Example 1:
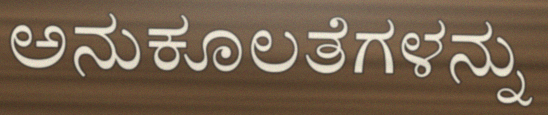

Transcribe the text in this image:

ಅನುಕೂಲತೆಗಳನ್ನು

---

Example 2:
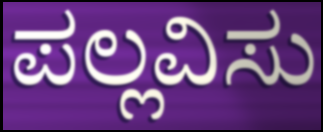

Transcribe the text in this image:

ಪಲ್ಲವಿಸು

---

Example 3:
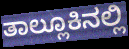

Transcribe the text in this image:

ತಾಲ್ಲೂಕಿನಲ್ಲಿ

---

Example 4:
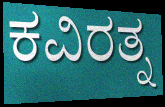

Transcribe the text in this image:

ಕವಿರತ್ನ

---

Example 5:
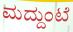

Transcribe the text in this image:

ಮದ್ದುಂಟೆ